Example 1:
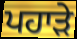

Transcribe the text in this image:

ਪਹਾੜੇ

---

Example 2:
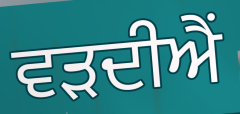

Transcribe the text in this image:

ਵੜਦੀਐਂ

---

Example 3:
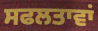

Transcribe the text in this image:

ਸਫਲਤਾਵਾਂ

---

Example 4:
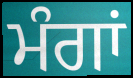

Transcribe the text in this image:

ਮੰਗਾਂ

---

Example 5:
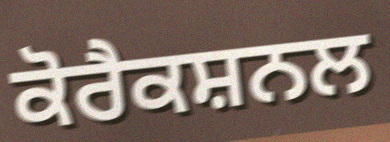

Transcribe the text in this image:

ਕੋਰੈਕਸ਼ਨਲ